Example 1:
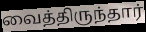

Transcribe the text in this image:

வைத்திருந்தார்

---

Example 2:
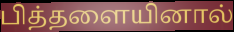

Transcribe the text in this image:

பித்தளையினால்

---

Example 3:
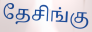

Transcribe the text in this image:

தேசிங்கு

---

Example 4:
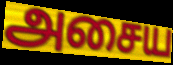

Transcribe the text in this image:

அசைய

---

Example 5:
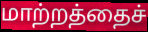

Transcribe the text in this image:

மாற்றத்தைச்